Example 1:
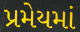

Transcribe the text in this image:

પ્રમેયમાં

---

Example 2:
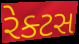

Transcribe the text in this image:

રેક્ટસ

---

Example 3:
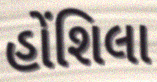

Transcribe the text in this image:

હોંશિલા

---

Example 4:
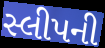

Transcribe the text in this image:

સ્લીપની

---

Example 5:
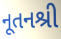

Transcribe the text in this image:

નૂતનશ્રી